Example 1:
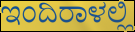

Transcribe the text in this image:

ಇಂದಿರಾಳಲ್ಲಿ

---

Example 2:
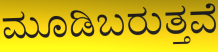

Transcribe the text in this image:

ಮೂಡಿಬರುತ್ತವೆ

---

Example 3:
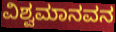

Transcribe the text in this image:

ವಿಶ್ವಮಾನವನ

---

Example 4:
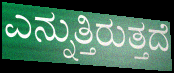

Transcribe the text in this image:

ಎನ್ನುತ್ತಿರುತ್ತದೆ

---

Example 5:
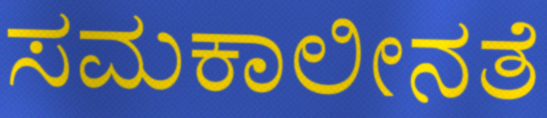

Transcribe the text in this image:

ಸಮಕಾಲೀನತೆ